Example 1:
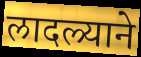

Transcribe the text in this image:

लादल्याने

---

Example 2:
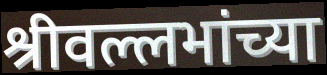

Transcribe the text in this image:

श्रीवल्लभांच्या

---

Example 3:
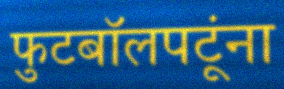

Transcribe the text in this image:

फुटबॉलपटूंना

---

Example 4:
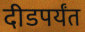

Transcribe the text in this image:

दीडपर्यंत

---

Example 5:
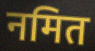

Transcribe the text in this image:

नमित